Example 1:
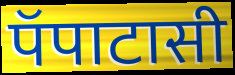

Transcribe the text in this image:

पॅपाटासी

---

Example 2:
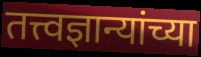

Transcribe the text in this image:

तत्त्वज्ञान्यांच्या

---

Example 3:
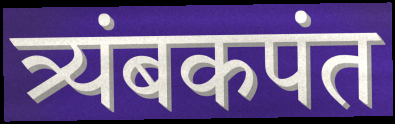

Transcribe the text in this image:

त्र्यंबकपंत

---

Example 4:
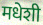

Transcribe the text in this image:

मधेशी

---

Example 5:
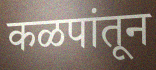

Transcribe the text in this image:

कळपांतून